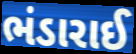
ભંડારાઈ